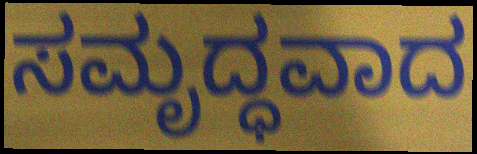
ಸಮೃದ್ಧವಾದ